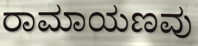
ರಾಮಾಯಣವು